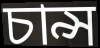
চান্স